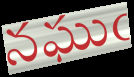
నఘుఁ